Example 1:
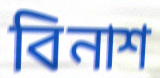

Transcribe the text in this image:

বিনাশ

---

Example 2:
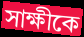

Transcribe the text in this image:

সাক্ষীকে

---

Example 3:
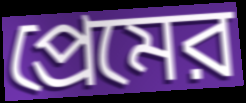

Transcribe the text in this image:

প্রেমের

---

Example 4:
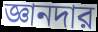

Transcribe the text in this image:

জ্ঞানদার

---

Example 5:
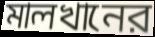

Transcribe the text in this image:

মালখানের